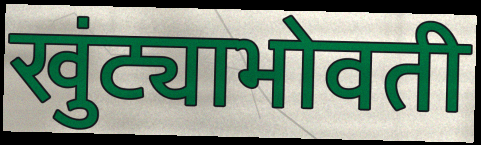
खुंट्याभोवती